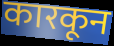
कारकून